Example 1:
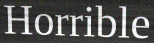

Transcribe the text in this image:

Horrible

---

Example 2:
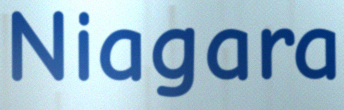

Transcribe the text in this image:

Niagara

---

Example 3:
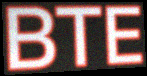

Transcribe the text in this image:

BTE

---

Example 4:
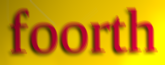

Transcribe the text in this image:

foorth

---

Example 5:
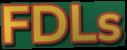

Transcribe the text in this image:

FDLs